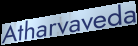
Atharvaveda